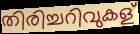
തിരിച്ചറിവുകള്